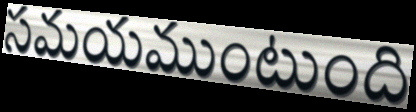
సమయముంటుంది